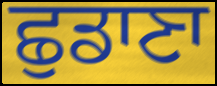
ਛੁਡਾਣਾ